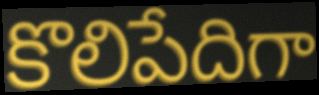
కొలిపేదిగా